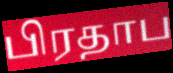
பிரதாப